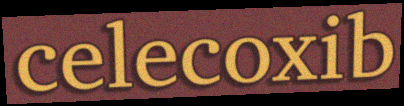
celecoxib